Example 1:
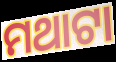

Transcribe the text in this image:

ମଥାଟା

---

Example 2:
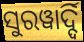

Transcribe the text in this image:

ସୁରୱାର୍ଦ୍ଦି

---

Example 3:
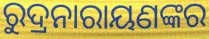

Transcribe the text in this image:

ରୁଦ୍ରନାରାୟଣଙ୍କର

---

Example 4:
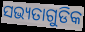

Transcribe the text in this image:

ସଭ୍ୟତାଗୁଡିକ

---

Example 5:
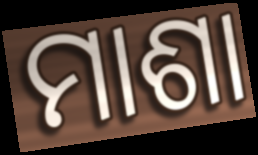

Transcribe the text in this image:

ମାଶା